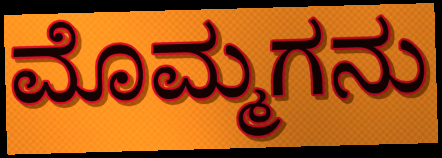
ಮೊಮ್ಮಗನು